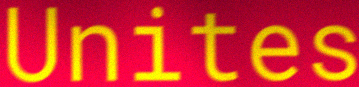
Unites